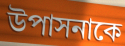
উপাসনাকে